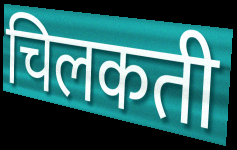
चिलकती